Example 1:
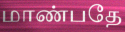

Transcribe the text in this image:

மாண்பதே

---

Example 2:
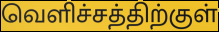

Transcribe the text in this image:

வெளிச்சத்திற்குள்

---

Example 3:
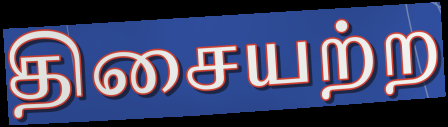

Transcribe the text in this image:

திசையற்ற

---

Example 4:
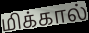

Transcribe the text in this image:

மிக்கால்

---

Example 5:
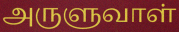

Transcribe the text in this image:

அருளுவாள்